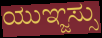
ಯುಞ್ಜಸ್ಸು